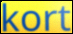
kort